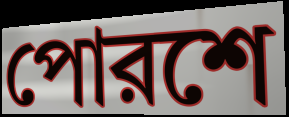
পোরশে